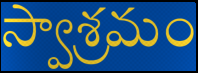
స్వాశ్రమం